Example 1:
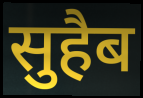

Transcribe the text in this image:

सुहैब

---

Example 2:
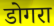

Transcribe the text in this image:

डोगरा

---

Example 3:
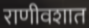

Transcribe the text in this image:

राणीवशात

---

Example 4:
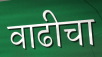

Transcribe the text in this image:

वाढीचा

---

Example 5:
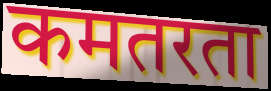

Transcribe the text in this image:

कमतरता